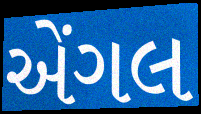
એંગલ